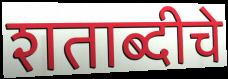
शताब्दीचे